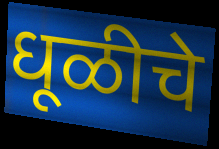
धूळीचे